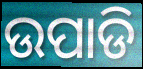
ଉପାଡି